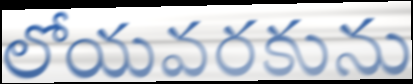
లోయవరకును